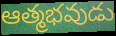
ఆత్మభవుడు